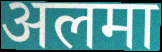
अलमा